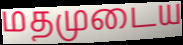
மதமுடைய